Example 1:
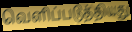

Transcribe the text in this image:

வெளிப்படுத்தியது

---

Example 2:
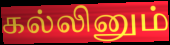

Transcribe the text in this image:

கல்லினும்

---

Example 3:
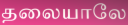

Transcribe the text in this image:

தலையாலே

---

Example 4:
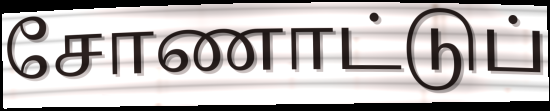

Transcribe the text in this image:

சோணாட்டுப்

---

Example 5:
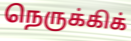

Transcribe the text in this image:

நெருக்கிக்